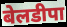
बेलडीपा